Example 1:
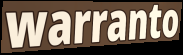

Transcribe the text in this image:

warranto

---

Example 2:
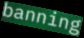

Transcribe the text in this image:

banning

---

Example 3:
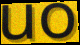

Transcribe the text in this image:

uo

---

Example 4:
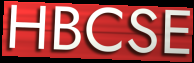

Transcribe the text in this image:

HBCSE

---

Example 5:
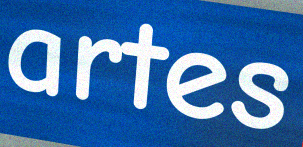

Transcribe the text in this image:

artes